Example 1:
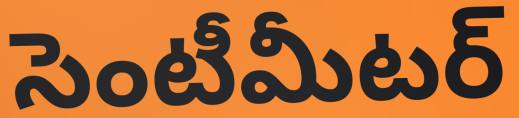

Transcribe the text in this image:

సెంటీమీటర్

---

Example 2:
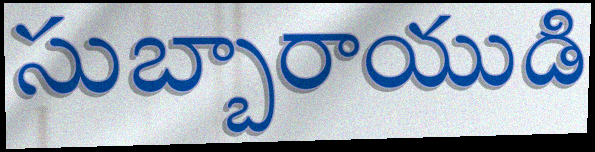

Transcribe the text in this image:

సుబ్బారాయుడి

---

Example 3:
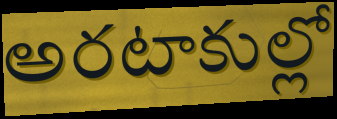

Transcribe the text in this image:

అరటాకుల్లో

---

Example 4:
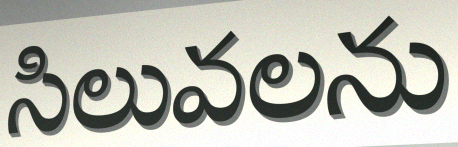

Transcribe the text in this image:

సిలువలను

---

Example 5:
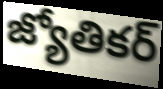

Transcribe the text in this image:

జ్యోతికర్